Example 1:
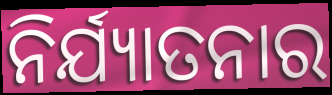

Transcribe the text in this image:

ନିର୍ଯ୍ୟାତନାର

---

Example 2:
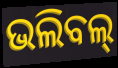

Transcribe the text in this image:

ଭଲିବଲ୍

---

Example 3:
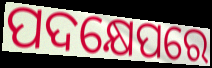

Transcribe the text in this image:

ପଦକ୍ଷେପରେ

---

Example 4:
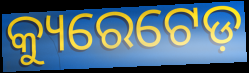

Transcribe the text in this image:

କ୍ୟୁରେଟେଡ଼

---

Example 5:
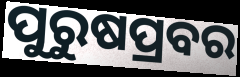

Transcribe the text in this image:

ପୁରୁଷପ୍ରବର